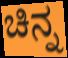
ಚಿನ್ನ